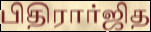
பிதிரார்ஜித